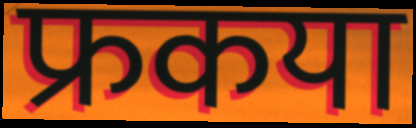
फ्रकया